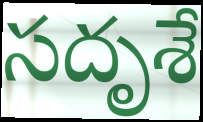
సదృశే